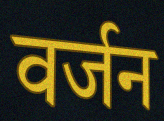
वर्जन